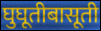
घुघूतीबासूती